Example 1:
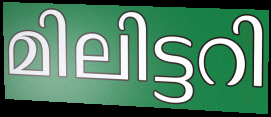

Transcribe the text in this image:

മിലിട്ടറി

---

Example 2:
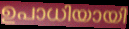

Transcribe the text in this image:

ഉപാധിയായി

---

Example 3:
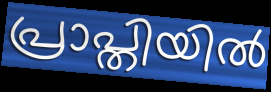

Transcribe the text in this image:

പ്രാപ്തിയിൽ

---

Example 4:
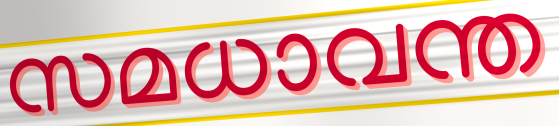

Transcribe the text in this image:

സമധാവന്ത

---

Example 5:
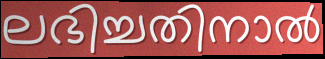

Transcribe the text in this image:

ലഭിച്ചതിനാൽ